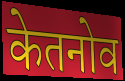
केतनोव